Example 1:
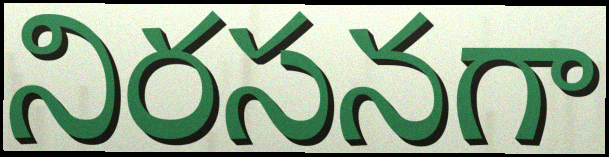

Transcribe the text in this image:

నిరసనగా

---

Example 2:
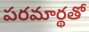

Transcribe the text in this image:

పరమార్థతో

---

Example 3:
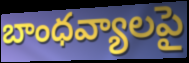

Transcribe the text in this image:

బాంధవ్యాలపై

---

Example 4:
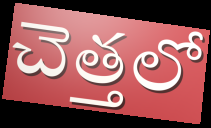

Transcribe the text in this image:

చెత్తలో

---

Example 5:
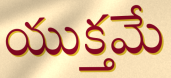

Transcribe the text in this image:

యుక్తమే